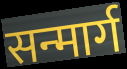
सन्‍मार्ग